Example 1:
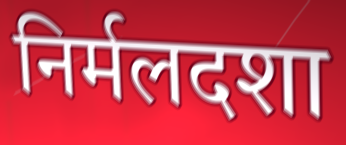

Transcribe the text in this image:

निर्मलदशा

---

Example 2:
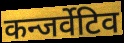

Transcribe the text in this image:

कन्जर्वेटिव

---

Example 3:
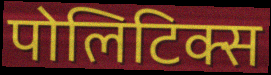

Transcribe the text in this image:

पोलिटिक्स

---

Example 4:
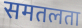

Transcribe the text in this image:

समतलता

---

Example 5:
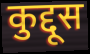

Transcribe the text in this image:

कुद्दूस